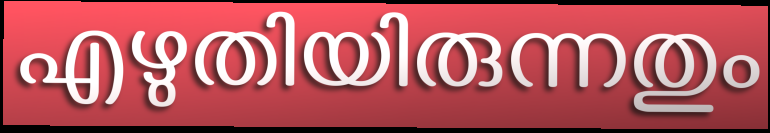
എഴുതിയിരുന്നതും